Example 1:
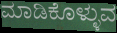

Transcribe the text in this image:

ಮಾಡಿಕೊಳ್ಳುವ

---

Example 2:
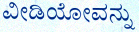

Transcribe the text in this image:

ವೀಡಿಯೋವನ್ನು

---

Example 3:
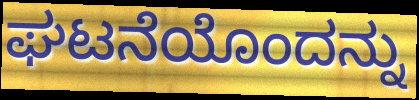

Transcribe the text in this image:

ಘಟನೆಯೊಂದನ್ನು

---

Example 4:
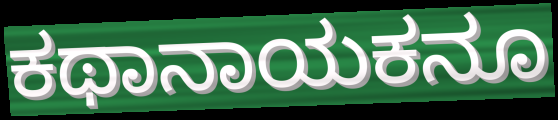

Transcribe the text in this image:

ಕಥಾನಾಯಕನೂ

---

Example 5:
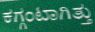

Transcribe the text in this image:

ಕಗ್ಗಂಟಾಗಿತ್ತು